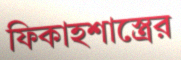
ফিকাহশাস্ত্রের